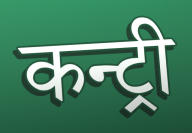
कन्ट्री